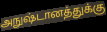
அநுஷ்டானத்துக்கு